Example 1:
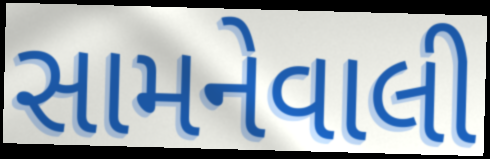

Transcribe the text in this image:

સામનેવાલી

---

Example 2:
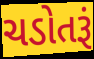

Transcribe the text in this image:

ચડોતરૂં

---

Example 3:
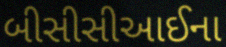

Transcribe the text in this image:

બીસીસીઆઈના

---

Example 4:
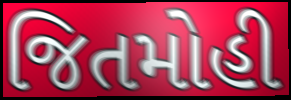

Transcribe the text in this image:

જિતમોહી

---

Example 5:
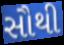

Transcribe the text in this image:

સૌથી